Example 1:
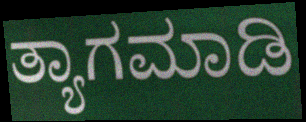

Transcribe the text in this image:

ತ್ಯಾಗಮಾಡಿ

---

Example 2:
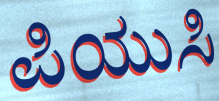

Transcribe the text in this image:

ಪಿಯುಸಿ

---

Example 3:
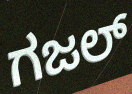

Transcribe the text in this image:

ಗಜಲ್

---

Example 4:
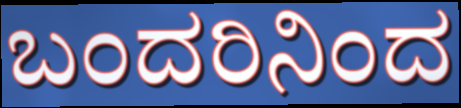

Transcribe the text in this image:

ಬಂದರಿನಿಂದ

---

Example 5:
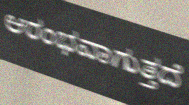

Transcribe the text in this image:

ಆರಂಭವಾಗುತ್ತದೆ